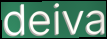
deiva